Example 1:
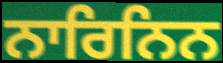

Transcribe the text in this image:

ਨਾਰਿਨਿਨ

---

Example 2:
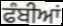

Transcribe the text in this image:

ਫੰਬੀਆਂ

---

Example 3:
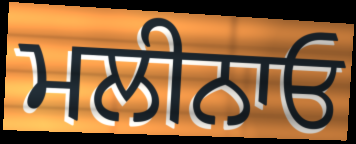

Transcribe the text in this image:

ਮਲੀਨਾਓ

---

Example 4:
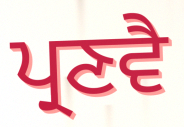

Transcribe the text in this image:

ਪ੍ਰਣਵੈ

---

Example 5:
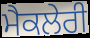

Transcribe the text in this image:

ਮੈਕਲੇਰੀ